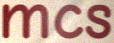
mcs